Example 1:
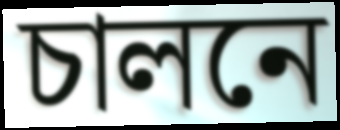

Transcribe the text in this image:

চালনে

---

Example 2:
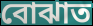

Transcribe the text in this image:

বোঝাত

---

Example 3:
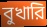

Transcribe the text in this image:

বুখারি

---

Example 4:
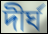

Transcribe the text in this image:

দীর্ঘ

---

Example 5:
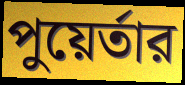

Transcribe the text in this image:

পুয়ের্তার